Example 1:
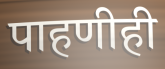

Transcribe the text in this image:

पाहणीही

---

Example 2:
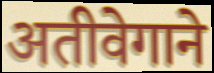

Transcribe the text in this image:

अतीवेगाने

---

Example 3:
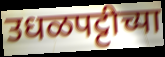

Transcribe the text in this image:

उधळपट्टीच्या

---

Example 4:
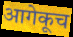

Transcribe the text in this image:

आगेकूच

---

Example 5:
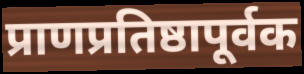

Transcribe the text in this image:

प्राणप्रतिष्ठापूर्वक